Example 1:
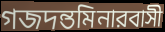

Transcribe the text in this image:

গজদন্তমিনারবাসী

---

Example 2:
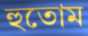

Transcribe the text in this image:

হুতোম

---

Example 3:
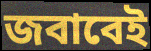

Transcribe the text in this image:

জবাবেই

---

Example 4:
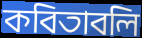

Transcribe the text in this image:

কবিতাবলি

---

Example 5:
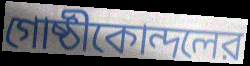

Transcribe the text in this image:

গোষ্ঠীকোন্দলের